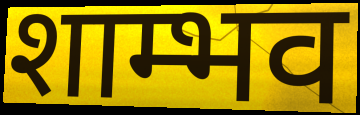
शाम्भव